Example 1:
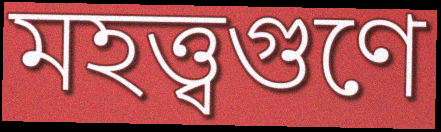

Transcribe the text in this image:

মহত্ত্বগুণে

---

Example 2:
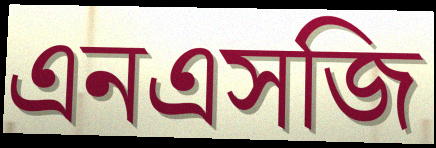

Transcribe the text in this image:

এনএসজি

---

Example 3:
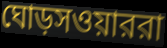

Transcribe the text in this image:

ঘোড়সওয়াররা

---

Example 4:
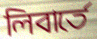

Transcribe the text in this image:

লিবার্তে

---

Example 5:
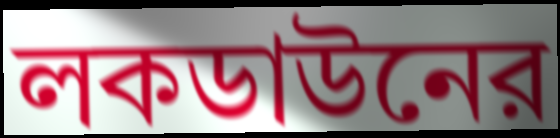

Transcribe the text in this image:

লকডাউনের